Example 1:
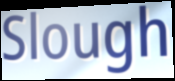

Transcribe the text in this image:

Slough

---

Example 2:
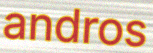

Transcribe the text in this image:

andros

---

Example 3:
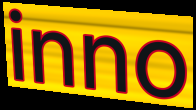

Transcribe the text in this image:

inno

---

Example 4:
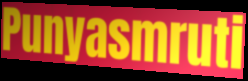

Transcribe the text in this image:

Punyasmruti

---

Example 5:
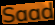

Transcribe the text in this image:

Saad